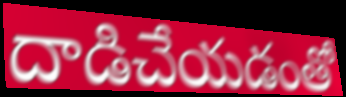
దాడిచేయడంతో